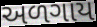
અળગાય